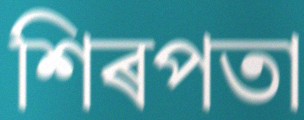
শিৰপতা